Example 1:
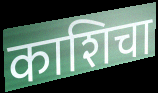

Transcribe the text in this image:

काशिचा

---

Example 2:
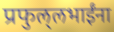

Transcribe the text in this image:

प्रफुल्लभाईंना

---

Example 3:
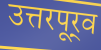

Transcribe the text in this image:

उत्तरपूर्व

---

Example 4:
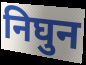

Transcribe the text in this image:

निघुन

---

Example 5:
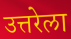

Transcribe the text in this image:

उत्तरेला